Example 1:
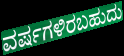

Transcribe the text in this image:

ವರ್ಷಗಳಿರಬಹುದು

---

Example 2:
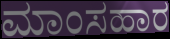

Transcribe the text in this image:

ಮಾಂಸಹಾರ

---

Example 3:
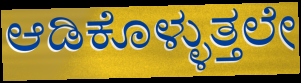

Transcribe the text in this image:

ಆಡಿಕೊಳ್ಳುತ್ತಲೇ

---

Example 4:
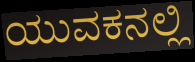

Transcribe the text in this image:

ಯುವಕನಲ್ಲಿ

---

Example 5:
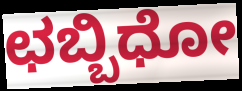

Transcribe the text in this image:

ಛಬ್ಬಿಧೋ